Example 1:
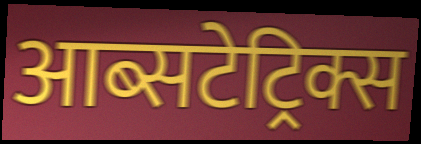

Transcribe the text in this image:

आब्सटेट्रिक्स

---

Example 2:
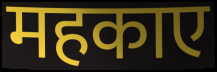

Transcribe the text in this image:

महकाए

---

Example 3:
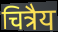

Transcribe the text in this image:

चित्रैय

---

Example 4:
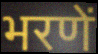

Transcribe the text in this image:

भरणें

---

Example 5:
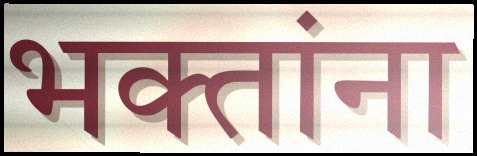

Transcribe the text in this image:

भक्तांना